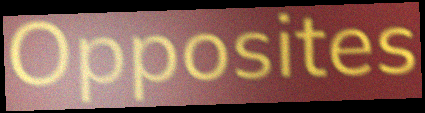
Opposites